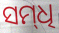
ସମ୍‌ଧି